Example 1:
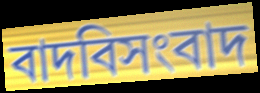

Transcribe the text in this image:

বাদবিসংবাদ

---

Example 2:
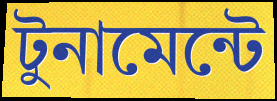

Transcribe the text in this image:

টুনামেন্টে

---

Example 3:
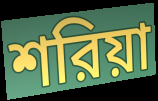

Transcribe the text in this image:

শরিয়া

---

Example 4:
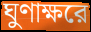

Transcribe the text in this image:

ঘুণাক্ষরে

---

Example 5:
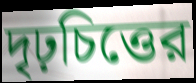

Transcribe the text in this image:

দৃঢ়চিত্তের